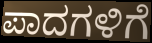
ಪಾದಗಳಿಗೆ